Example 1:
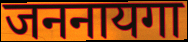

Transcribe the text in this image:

जननायगा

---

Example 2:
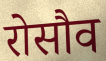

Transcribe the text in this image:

रोसौव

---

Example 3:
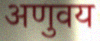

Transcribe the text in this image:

अणुवय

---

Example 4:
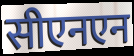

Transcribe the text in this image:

सीएनएन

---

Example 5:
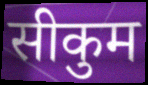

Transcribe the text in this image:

सीकुम